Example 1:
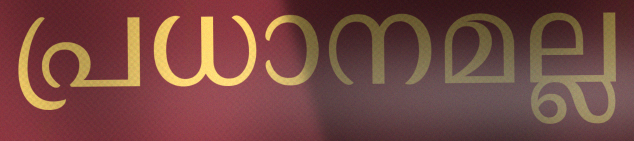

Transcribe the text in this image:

പ്രധാനമല്ല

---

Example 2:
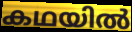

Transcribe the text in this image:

കഥയിൽ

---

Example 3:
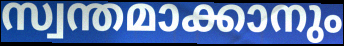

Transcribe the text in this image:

സ്വന്തമാക്കാനും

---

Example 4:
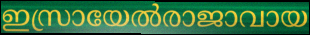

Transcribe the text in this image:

ഇസ്രായേൽരാജാവായ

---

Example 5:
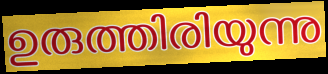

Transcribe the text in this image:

ഉരുത്തിരിയുന്നു